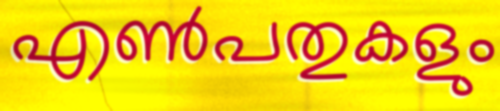
എൺപതുകളും